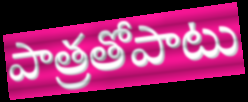
పాత్రతోపాటు